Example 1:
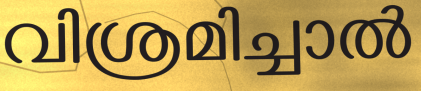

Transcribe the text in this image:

വിശ്രമിച്ചാൽ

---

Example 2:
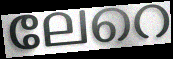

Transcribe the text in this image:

ലേറെ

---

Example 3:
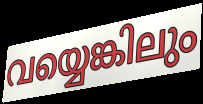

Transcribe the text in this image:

വയ്യെങ്കിലും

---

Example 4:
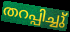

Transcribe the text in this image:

തറപ്പിച്ചു്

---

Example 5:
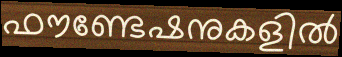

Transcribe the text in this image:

ഫൗണ്ടേഷനുകളിൽ